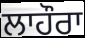
ਲਾਹੌਰਾ